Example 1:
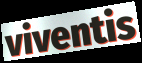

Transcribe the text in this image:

viventis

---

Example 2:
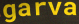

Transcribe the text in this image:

garva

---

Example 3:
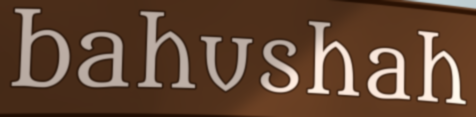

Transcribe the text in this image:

bahushah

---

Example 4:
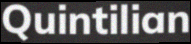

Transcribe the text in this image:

Quintilian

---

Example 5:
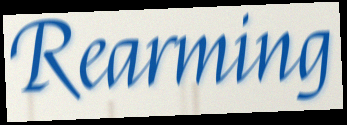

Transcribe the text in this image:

Rearming